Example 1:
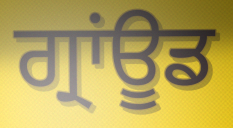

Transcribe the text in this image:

ਗ੍ਰਾਂਊਡ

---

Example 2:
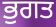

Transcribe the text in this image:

ਭੁਗਤ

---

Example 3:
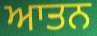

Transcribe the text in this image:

ਆਤਨ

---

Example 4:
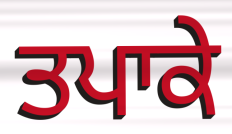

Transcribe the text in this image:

ਤਪਾਕੇ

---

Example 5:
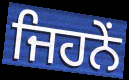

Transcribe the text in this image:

ਜਿਹਨੇਂ